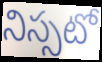
నిస్సటో